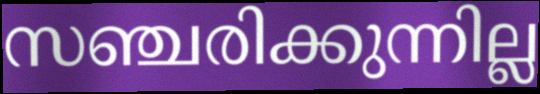
സഞ്ചരിക്കുന്നില്ല